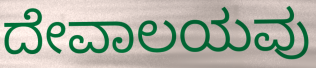
ದೇವಾಲಯವು